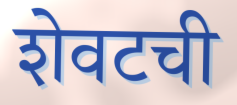
शेवटची